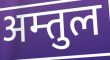
अम्तुल